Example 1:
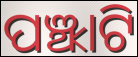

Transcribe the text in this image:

ପଞ୍ଝାଟି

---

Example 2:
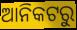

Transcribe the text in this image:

ଆନିକଟରୁ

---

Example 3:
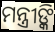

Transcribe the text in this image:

ମନ୍ତ୍ରୀଙ୍କି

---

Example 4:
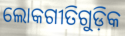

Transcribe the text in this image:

ଲୋକଗୀତିଗୁଡ଼ିକ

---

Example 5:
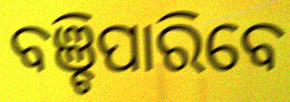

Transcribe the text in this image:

ବଞ୍ଚିପାରିବେ